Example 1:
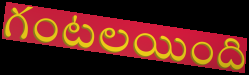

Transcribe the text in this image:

గంటలయింది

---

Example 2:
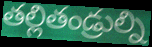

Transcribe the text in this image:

తల్లితండ్రుల్ని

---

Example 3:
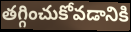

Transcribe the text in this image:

తగ్గించుకోవడానికి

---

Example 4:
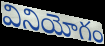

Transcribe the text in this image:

వినియోగం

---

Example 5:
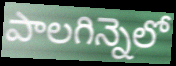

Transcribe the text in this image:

పాలగిన్నెలో